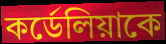
কর্ডেলিয়াকে